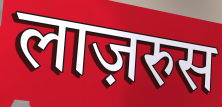
लाज़रुस